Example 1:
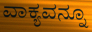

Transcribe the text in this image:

ವಾಕ್ಯವನ್ನೂ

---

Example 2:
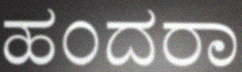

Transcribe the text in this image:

ಹಂದರಾ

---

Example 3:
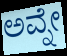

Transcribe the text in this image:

ಅವ್ನೇ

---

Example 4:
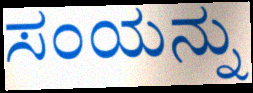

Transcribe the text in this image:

ಸಂಯನ್ನು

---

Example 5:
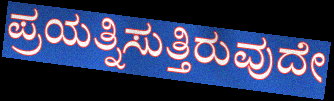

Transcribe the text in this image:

ಪ್ರಯತ್ನಿಸುತ್ತಿರುವುದೇ